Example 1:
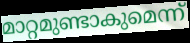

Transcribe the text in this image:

മാറ്റമുണ്ടാകുമെന്ന്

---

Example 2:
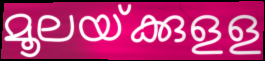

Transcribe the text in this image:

മൂലയ്‌ക്കുളള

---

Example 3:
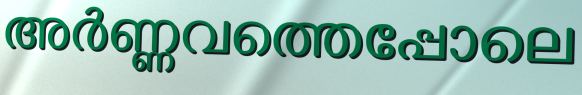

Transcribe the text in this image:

അർണ്ണവത്തെപ്പോലെ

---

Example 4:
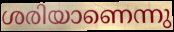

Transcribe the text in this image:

ശരിയാണെന്നു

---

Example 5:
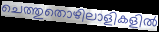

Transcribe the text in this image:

ചെത്തുതൊഴിലാളികളിൽ